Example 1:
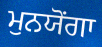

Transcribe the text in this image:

ਮੁਨਯੋਂਗਾ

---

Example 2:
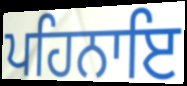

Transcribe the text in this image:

ਪਹਿਨਾਇ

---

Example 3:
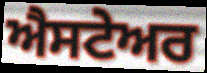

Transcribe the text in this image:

ਐਸਟੇਅਰ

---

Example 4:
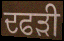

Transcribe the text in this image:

ਦਫੜੀ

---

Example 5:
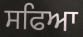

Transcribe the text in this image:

ਸਫਿਆ